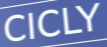
CICLY